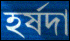
হর্ষদা